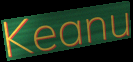
Keanu